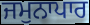
ਜਮੁਨਾਪਾਰ